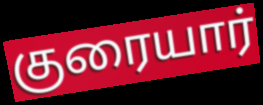
குரையார்